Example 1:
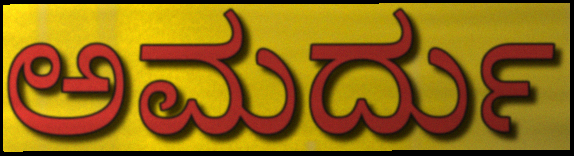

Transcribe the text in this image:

ಅಮರ್ದು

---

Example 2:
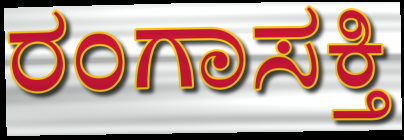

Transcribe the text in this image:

ರಂಗಾಸಕ್ತಿ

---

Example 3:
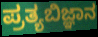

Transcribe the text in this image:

ಪ್ರತ್ಯಬಿಜ್ಞಾನ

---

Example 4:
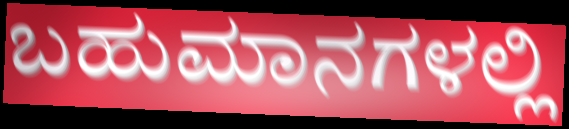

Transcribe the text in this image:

ಬಹುಮಾನಗಳಲ್ಲಿ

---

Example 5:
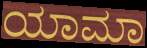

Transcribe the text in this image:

ಯಾಮಾ